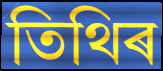
তিথিৰ